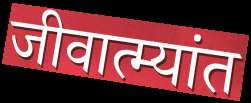
जीवात्म्यांत